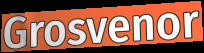
Grosvenor